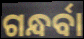
ଗନ୍ଧର୍ବା